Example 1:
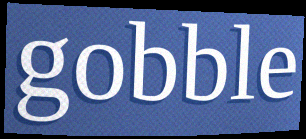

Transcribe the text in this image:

gobble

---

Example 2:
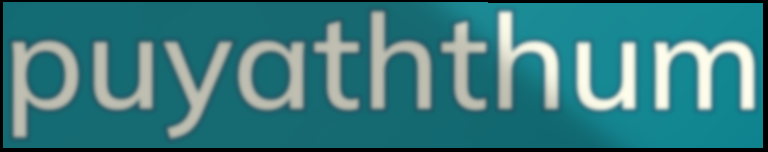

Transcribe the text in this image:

puyaththum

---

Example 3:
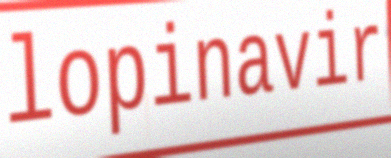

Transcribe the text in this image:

lopinavir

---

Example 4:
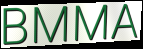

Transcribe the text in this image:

BMMA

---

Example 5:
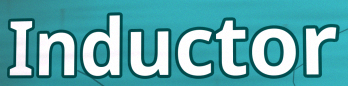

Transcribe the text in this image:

Inductor